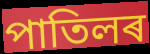
পাতিলৰ